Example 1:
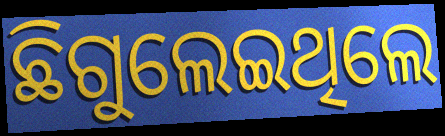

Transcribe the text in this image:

ଛିଗୁଲେଇଥିଲେ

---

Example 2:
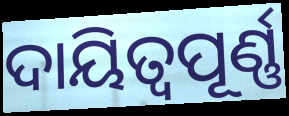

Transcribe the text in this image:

ଦାୟିତ୍ୱପୂର୍ଣ୍ଣ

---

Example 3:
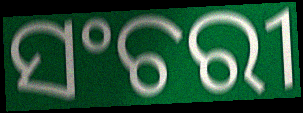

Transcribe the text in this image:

ସଂଚରୀ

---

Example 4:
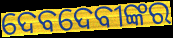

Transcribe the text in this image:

ଦେବଦେବୀଙ୍କର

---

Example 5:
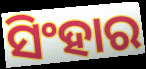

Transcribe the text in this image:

ସିଂହାର